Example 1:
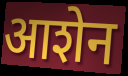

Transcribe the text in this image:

आशेन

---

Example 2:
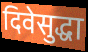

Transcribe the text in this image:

दिवेसुद्धा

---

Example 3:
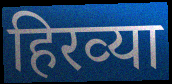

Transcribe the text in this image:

हिरव्‍या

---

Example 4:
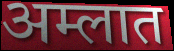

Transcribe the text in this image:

अम्लात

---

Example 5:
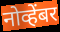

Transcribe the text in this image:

नोव्हेंबर